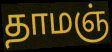
தாமஞ்